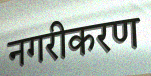
नगरीकरण